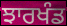
ਝਾਰਖੰਡ